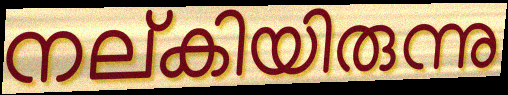
നല്കിയിരുന്നു